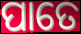
ପାତେ